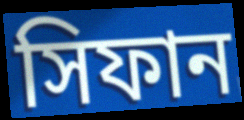
সিফান